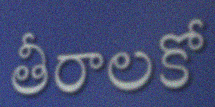
తీరాలకో